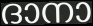
ദാനാ